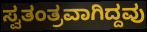
ಸ್ವತಂತ್ರವಾಗಿದ್ದವು